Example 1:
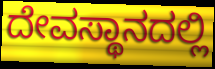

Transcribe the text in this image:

ದೇವಸ್ಥಾನದಲ್ಲಿ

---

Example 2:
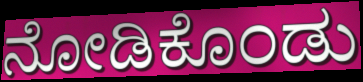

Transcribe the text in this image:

ನೋಡಿಕೊಂಡು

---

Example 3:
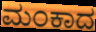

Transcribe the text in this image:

ಮಂಕಾದ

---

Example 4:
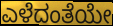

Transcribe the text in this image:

ಎಳೆದಂತೆಯೇ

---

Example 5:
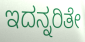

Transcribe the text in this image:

ಇದನ್ನರಿತೇ